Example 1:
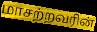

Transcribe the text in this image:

மாசற்றவரின்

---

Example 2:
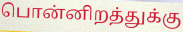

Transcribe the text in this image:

பொன்னிறத்துக்கு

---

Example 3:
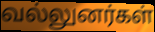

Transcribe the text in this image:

வல்லுனர்கள்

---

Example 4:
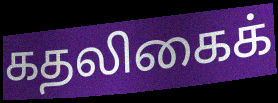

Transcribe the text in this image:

கதலிகைக்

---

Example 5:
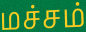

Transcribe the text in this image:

மச்சம்